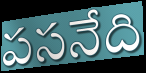
పసనేది